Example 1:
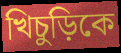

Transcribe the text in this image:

খিচুড়িকে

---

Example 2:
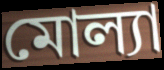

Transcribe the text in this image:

মোল্যা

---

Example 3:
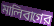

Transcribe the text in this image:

মালিবাগের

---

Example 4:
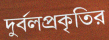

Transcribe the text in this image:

দুর্বলপ্রকৃতির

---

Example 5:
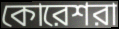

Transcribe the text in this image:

কোরেশরা